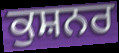
ਕੁਸ਼ਨਰ